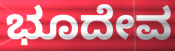
ಭೂದೇವ